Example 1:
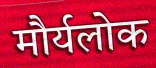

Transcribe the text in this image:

मौर्यलोक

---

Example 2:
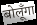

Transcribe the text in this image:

बोलूँगा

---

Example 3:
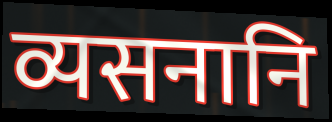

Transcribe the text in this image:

व्यसनानि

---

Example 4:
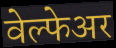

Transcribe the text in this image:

वेल्फेअर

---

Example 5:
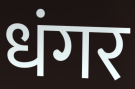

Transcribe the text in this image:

धंगर